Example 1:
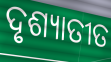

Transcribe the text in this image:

ଦୃଶ୍ୟାତୀତ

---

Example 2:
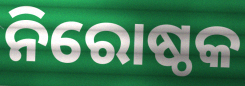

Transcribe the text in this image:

ନିରୋଷ୍ଠକ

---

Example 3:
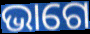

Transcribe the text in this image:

ଭାଗେ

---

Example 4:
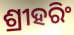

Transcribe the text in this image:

ଶ୍ରୀହରିଂ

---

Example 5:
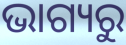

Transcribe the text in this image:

ଭାଗ୍ୟରୁ